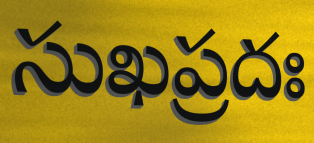
సుఖప్రదః